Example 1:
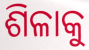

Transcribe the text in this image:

ଶିଳାକୁ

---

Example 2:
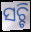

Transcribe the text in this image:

ସଚ୍ଚି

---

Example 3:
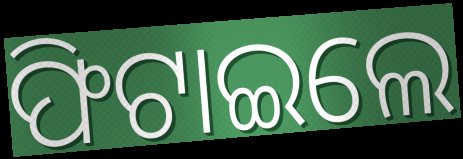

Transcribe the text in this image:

ଫିଟାଇଲେ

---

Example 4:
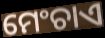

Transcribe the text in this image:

ମେଂଚାଏ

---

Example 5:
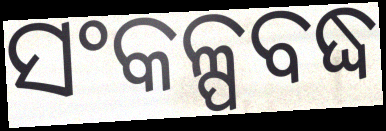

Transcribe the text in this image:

ସଂକଳ୍ପବଦ୍ଧ